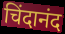
चिंदानंद